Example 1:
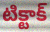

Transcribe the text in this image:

టిక్టాక్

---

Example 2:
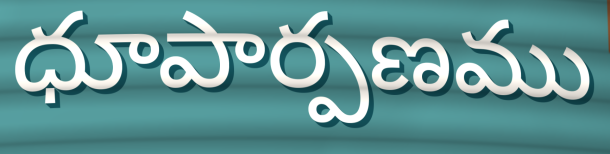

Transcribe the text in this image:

ధూపార్పణము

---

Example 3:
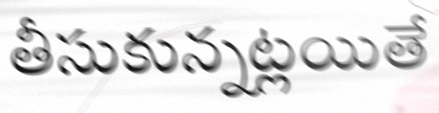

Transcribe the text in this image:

తీసుకున్నట్లయితే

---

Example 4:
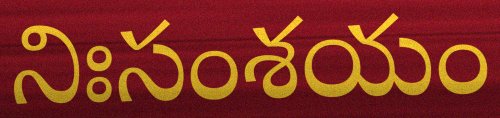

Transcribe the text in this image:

నిఃసంశయం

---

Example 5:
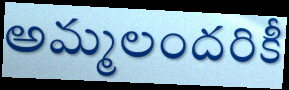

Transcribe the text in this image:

అమ్మలందరికీ